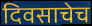
दिवसाचेच